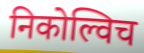
निकोल्विच